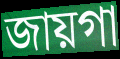
জায়গা